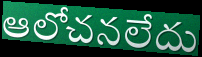
ఆలోచనలేదు